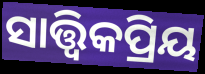
ସାତ୍ତ୍ଵିକପ୍ରିୟ